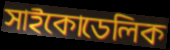
সাইকোডেলিক